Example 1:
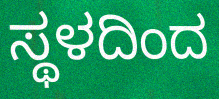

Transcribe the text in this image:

ಸ್ಥಳದಿಂದ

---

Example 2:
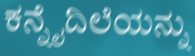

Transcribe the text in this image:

ಕನ್ನೈದಿಲೆಯನ್ನು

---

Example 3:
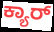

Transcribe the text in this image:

ಕ್ಯಾರ್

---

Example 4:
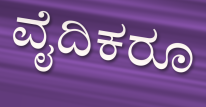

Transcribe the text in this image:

ವೈದಿಕರೂ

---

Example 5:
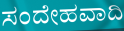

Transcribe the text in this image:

ಸಂದೇಹವಾದಿ